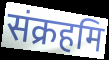
संक्रहमि